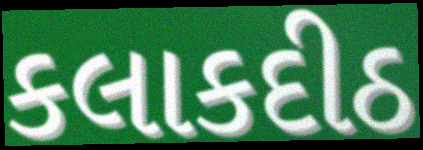
કલાકદીઠ